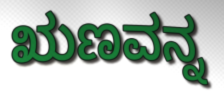
ಋಣವನ್ನ